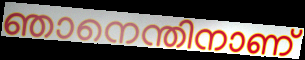
ഞാനെന്തിനാണ്